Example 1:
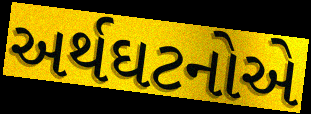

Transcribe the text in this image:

અર્થઘટનોએ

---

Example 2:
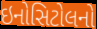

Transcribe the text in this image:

ઇનોસિટોલનો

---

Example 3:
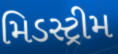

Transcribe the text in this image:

મિડસ્ટ્રીમ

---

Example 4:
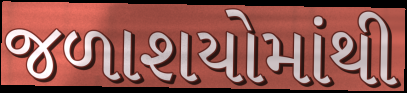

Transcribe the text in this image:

જળાશયોમાંથી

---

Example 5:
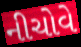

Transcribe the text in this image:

નીચોવે